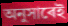
অনুসাৰেই